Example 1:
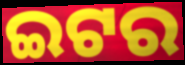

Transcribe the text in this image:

ଇଟର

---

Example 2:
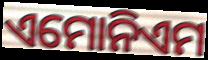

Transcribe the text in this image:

ଏମୋନିଏମ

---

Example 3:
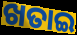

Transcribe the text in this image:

ଖତାଇ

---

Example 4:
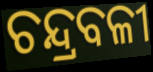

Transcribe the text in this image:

ଚନ୍ଦ୍ରବଳୀ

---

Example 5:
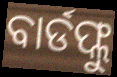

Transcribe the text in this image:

ବାର୍ଡଫ୍ଲୁ